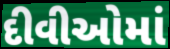
દીવીઓમાં